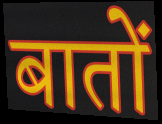
बातों